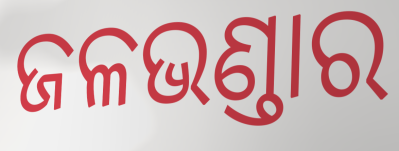
ଜଳଭଣ୍ଡାର